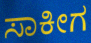
ಸಾಕೀಗ